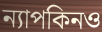
ন্যাপকিনও